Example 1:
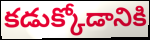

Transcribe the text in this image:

కడుక్కోడానికి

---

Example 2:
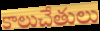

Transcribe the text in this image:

కాలుచేతులు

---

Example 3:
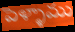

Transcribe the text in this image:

పెళ్ళాము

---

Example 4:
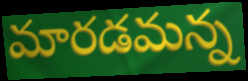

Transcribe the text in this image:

మారడమన్న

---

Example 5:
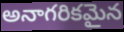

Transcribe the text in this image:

అనాగరికమైన